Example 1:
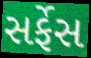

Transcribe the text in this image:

સર્ફેસ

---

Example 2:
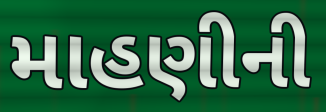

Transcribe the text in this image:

માહણીની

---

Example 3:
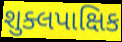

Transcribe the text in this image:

શુક્લપાક્ષિક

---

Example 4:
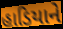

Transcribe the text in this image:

હાડિયાને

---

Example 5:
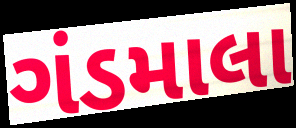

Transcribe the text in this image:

ગંડમાલા